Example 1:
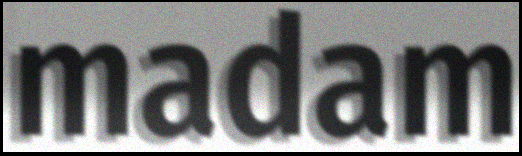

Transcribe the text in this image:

madam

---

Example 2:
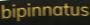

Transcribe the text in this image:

bipinnatus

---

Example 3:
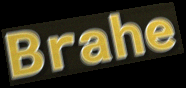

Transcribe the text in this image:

Brahe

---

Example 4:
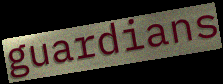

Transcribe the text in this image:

guardians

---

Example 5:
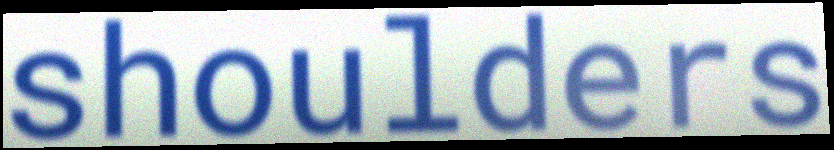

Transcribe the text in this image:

shoulders